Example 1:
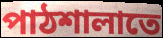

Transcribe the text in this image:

পাঠশালাতে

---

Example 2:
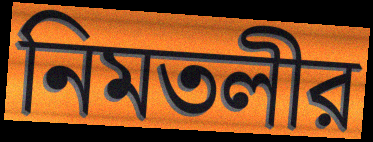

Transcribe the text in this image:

নিমতলীর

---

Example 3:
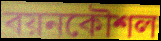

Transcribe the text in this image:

বয়নকৌশল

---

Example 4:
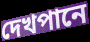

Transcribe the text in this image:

দেখপানে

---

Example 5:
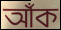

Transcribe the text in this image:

আঁক